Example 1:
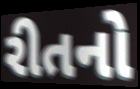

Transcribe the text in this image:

રીતનો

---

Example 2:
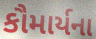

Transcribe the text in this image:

કૌમાર્યના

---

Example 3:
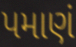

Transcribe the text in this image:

પમાણં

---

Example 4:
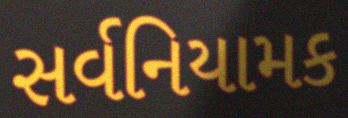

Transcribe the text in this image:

સર્વનિયામક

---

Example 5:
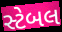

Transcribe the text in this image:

સ્ટેબલ